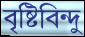
বৃষ্টিবিন্দু